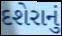
દશેરાનું